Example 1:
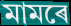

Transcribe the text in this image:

মামৰে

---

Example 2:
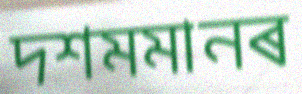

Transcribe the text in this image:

দশমমানৰ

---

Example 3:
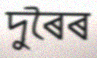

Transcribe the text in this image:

দুৰৈৰ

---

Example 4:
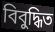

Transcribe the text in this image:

বিবুদ্ধিত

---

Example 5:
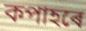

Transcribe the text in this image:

কপাহৰে